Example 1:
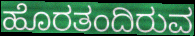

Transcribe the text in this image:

ಹೊರತಂದಿರುವ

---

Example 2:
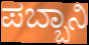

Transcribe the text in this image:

ಪಬ್ಬಾನಿ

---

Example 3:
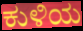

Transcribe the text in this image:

ಕುಳಿಯ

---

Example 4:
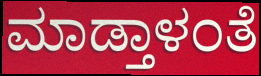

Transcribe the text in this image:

ಮಾಡ್ತಾಳಂತೆ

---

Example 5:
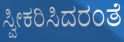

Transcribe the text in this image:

ಸ್ವೀಕರಿಸಿದರಂತೆ